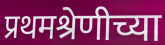
प्रथमश्रेणीच्या